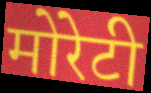
मोरेटी